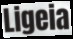
Ligeia